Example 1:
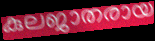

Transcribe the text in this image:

കുലജാതരായ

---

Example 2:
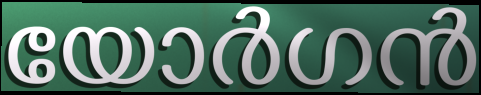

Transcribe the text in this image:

യോർഗൻ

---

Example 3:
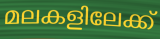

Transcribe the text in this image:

മലകളിലേക്ക്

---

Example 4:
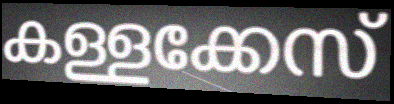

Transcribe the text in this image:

കള്ളക്കേസ്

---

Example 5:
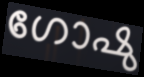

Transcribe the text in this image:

ഗോഷു